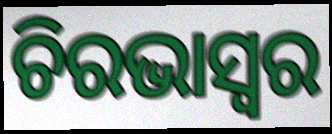
ଚିରଭାସ୍ଵର